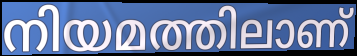
നിയമത്തിലാണ്